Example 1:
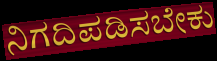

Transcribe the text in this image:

ನಿಗದಿಪಡಿಸಬೇಕು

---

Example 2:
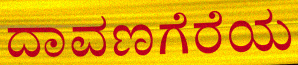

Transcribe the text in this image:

ದಾವಣಗೆರೆಯ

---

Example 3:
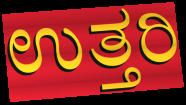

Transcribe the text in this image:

ಉತ್ತರಿ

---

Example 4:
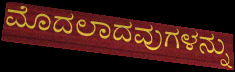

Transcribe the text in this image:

ಮೊದಲಾದವುಗಳನ್ನು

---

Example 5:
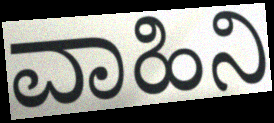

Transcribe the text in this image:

ವಾಹಿನಿ